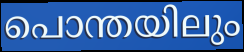
പൊന്തയിലും